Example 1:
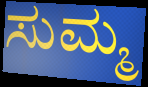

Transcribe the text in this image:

ಸುಮ್ಮ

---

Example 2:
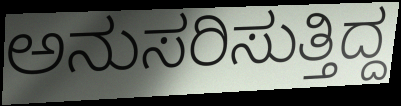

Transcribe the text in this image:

ಅನುಸರಿಸುತ್ತಿದ್ದ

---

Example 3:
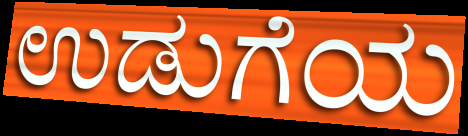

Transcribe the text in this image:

ಉಡುಗೆಯ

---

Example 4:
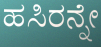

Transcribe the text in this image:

ಹಸಿರನ್ನೇ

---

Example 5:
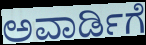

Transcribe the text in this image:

ಅವಾರ್ಡಿಗೆ